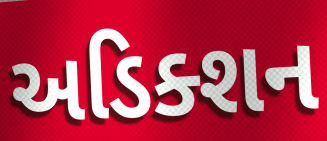
અડિક્શન